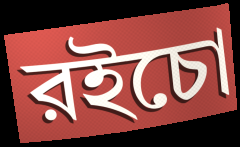
রইচো